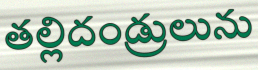
తల్లిదండ్రులును